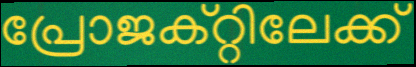
പ്രോജക്റ്റിലേക്ക്